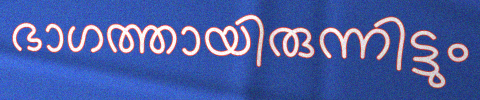
ഭാഗത്തായിരുന്നിട്ടും